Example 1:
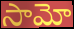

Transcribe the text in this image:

సామో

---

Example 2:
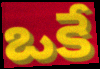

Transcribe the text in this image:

ఒకే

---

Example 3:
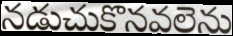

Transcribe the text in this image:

నడుచుకొనవలెను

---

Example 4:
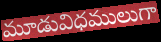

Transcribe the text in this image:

మూడువిధములుగా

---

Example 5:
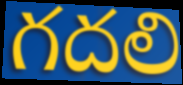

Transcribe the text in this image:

గదలి